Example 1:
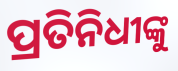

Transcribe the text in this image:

ପ୍ରତିନିଧୀଙ୍କୁ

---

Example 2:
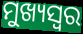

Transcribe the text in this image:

ମୁଖ୍ୟସ୍ୱର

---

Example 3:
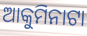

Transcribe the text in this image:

ଆକୁମିନାଟା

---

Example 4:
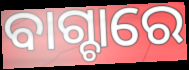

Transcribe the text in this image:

ବାଗ୍ଚାରେ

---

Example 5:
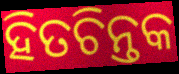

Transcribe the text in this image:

ହିତଚିନ୍ତକ